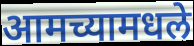
आमच्यामधले